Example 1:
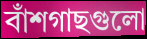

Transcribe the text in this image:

বাঁশগাছগুলো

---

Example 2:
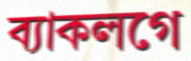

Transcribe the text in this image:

ব্যাকলগে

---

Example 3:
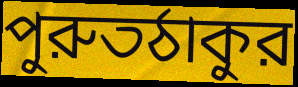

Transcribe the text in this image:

পুরুতঠাকুর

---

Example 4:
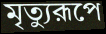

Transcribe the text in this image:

মৃত্যুরূপে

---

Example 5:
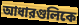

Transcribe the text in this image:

আধারগুলিকে